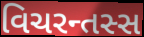
વિચરન્તસ્સ